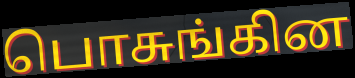
பொசுங்கின